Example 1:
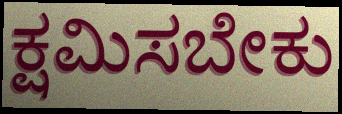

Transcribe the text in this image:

ಕ್ಷಮಿಸಬೇಕು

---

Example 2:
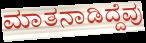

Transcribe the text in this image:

ಮಾತನಾಡಿದ್ದೆವು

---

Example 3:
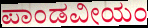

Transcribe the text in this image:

ಪಾಂಡವೀಯಂ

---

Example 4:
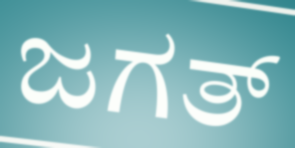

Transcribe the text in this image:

ಜಗತ್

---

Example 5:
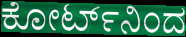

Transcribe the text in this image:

ಕೋರ್ಟ್‌ನಿಂದ